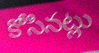
కోసినట్లు